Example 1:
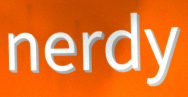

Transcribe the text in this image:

nerdy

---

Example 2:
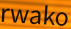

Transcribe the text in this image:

rwako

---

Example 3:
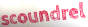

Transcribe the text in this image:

scoundrel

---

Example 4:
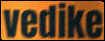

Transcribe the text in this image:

vedike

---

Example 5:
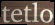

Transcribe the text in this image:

tetlo